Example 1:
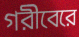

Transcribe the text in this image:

গরীবেরে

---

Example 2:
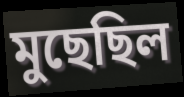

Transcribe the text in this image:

মুছেছিল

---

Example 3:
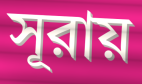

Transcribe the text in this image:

সূরায়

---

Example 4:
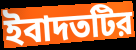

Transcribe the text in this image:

ইবাদতটির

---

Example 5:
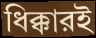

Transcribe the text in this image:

ধিক্কারই